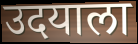
उदयाला